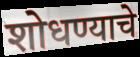
शोधण्याचे